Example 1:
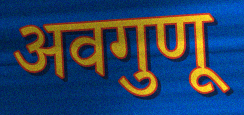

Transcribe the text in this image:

अवगुणू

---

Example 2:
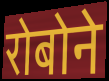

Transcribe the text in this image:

रोबोने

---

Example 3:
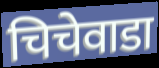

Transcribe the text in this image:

चिचेवाडा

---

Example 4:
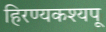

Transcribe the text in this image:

हिरण्यकश्यपू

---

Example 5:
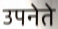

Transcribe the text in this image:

उपनेते